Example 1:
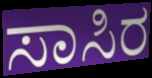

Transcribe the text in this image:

ಸಾಸಿರ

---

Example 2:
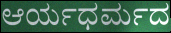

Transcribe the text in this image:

ಆರ್ಯಧರ್ಮದ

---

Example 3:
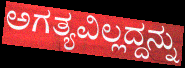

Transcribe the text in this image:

ಅಗತ್ಯವಿಲ್ಲದ್ದನ್ನು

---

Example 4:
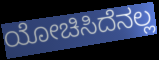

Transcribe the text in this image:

ಯೋಚಿಸಿದೆನಲ್ಲ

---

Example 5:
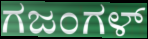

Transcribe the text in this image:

ಗಜಂಗಳ್